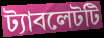
ট্যাবলেটটি